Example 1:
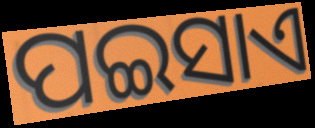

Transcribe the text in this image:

ପଇସାଏ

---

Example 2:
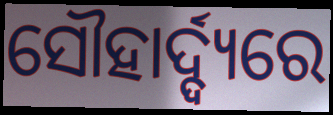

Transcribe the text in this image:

ସୌହାର୍ଦ୍ଦ୍ୟରେ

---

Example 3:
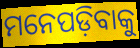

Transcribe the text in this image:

ମନେପଡ଼ିବାକୁ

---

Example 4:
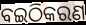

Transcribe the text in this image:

ବଇଠିକରଣ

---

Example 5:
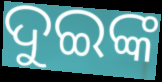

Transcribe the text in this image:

ଦୁଇଙ୍କ